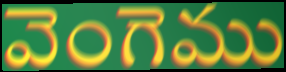
వెంగెము